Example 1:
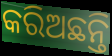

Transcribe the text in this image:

କରିଅଛନ୍ତି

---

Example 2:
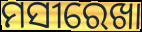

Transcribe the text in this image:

ମସୀରେଖା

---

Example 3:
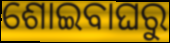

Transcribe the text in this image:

ଶୋଇବାଘରୁ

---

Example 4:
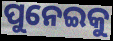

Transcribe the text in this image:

ପୁନେଇକୁ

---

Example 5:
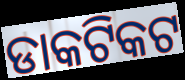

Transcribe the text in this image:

ଡାକଟିକଟ